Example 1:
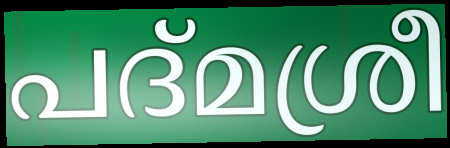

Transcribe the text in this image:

പദ്മശ്രീ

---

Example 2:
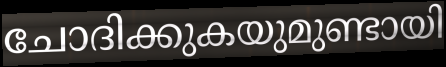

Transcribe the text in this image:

ചോദിക്കുകയുമുണ്ടായി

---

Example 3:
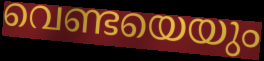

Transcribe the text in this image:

വെണ്ടയെയും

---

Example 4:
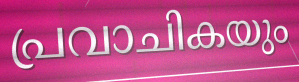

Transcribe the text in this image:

പ്രവാചികയും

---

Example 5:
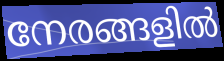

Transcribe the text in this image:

നേരങ്ങളിൽ